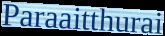
Paraaitthurai